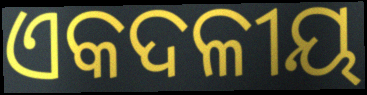
ଏକଦଳୀୟ